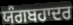
ਯੰਗਬਹਾਦਰ